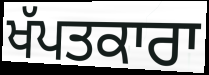
ਖੱਪਤਕਾਰਾ